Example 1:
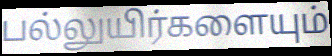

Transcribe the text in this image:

பல்லுயிர்களையும்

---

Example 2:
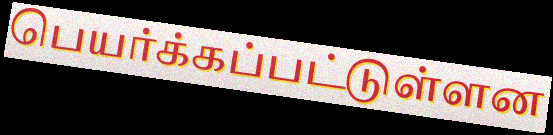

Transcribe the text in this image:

பெயர்க்கப்பட்டுள்ளன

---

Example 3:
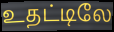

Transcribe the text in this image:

உதட்டிலே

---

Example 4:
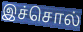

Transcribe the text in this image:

இச்சொல்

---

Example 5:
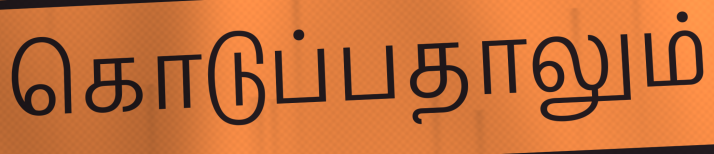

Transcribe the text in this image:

கொடுப்பதாலும்